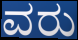
ವರು